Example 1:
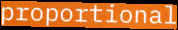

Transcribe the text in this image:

proportional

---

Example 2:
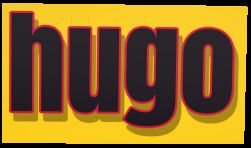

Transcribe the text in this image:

hugo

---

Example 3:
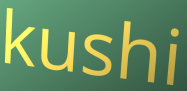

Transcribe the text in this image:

kushi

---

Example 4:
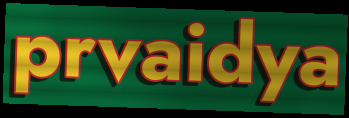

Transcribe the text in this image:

prvaidya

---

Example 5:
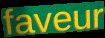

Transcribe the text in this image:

faveur